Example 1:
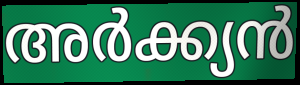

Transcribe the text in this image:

അർക്ക്യൻ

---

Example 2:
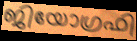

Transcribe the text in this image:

ജിയോഗ്രഫി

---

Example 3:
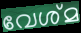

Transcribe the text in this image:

വേശ്മ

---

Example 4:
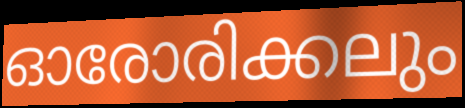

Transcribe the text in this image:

ഓരോരിക്കലും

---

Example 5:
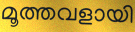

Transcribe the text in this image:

മൂത്തവളായി